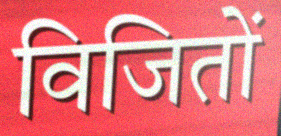
विजितों